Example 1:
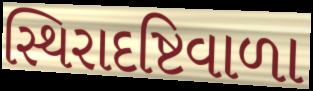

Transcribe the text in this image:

સ્થિરાદષ્ટિવાળા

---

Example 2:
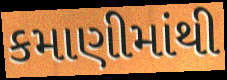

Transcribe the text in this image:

કમાણીમાંથી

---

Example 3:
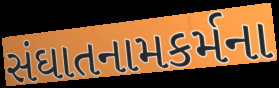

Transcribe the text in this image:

સંઘાતનામકર્મના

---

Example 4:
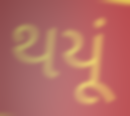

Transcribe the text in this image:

થયૂં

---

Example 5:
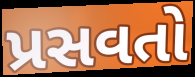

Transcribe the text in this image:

પ્રસવતો